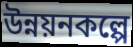
উন্নয়নকল্পে